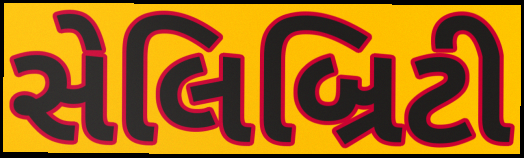
સેલિબ્રિટી